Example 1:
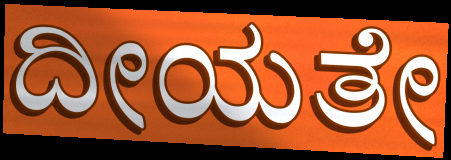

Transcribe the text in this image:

ದೀಯತೇ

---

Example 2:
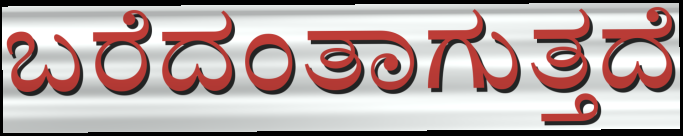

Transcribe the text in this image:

ಬರೆದಂತಾಗುತ್ತದೆ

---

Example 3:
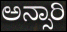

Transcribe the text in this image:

ಅನ್ಸಾರಿ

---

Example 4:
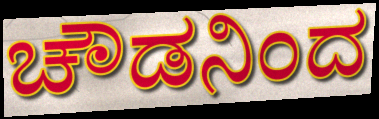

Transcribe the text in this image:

ಚೌಡನಿಂದ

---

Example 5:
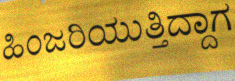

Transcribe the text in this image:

ಹಿಂಜರಿಯುತ್ತಿದ್ದಾಗ